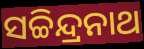
ସଚ୍ଚିନ୍ଦ୍ରନାଥ